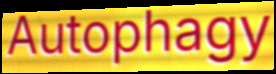
Autophagy